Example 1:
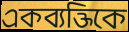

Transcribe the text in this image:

একব্যক্তিকে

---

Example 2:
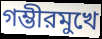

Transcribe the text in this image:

গম্ভীরমুখে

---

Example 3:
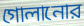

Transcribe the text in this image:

গোলানোর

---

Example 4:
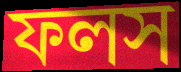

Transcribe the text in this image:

ফলস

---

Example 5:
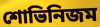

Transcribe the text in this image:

শোভিনিজম